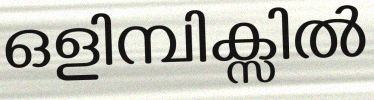
ഒളിമ്പിക്സിൽ